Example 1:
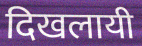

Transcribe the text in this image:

दिखलायी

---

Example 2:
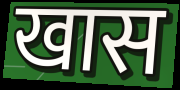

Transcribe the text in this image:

खास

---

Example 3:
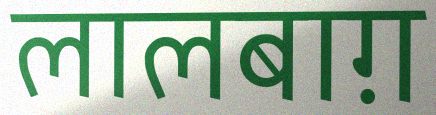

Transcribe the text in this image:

लालबाग़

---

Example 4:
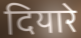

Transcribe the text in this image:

दियारे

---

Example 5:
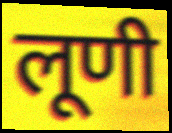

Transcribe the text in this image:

लूणी